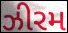
ઝીરમ